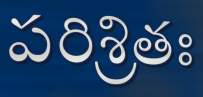
పరిశ్రితః